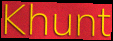
Khunt